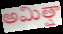
అమిత్షా